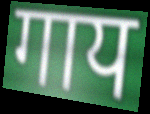
गाय